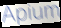
Apium